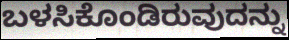
ಬಳಸಿಕೊಂಡಿರುವುದನ್ನು